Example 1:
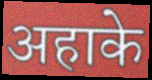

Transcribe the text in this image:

अहाके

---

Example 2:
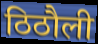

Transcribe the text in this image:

ठिठौली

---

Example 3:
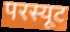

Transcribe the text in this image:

परस्यूट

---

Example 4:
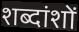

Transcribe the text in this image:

शब्दांशों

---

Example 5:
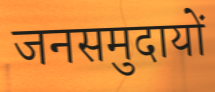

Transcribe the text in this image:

जनसमुदायों